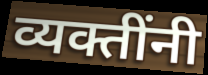
व्यक्तींनी